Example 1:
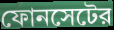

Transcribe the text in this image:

ফোনসেটের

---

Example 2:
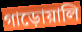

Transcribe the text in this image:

গাড়োয়ালি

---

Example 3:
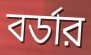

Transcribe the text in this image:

বর্ডার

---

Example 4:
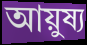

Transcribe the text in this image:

আয়ুষ্য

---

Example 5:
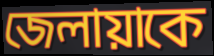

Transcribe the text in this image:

জেলায়াকে